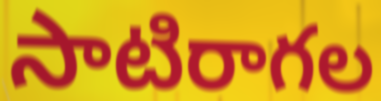
సాటిరాగల